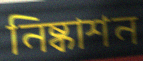
নিষ্কাশন